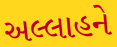
અલ્લાહને